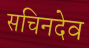
सचिनदेव